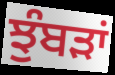
ਝੁੰਬੜਾਂ